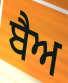
ਬੈਅ